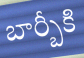
బార్బీకి